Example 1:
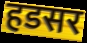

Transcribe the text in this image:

हडसर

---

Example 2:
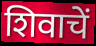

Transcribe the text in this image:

शिवाचें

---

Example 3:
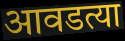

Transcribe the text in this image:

आवडत्या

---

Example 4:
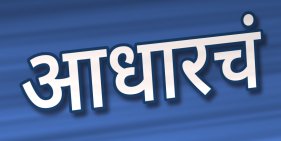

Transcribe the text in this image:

आधारचं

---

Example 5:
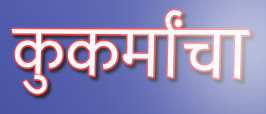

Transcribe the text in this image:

कुकर्मांचा